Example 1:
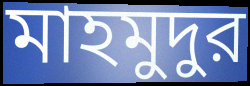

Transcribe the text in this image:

মাহমুদুর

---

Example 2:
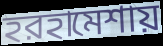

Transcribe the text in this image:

হরহামেশায়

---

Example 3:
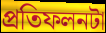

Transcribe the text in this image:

প্রতিফলনটা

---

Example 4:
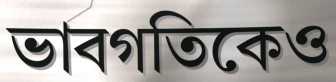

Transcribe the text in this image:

ভাবগতিকেও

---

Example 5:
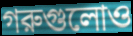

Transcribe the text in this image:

গরুগুলোও